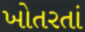
ખોતરતાં